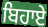
ਬਿਹਾਏ